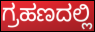
ಗ್ರಹಣದಲ್ಲಿ